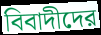
বিবাদীদের